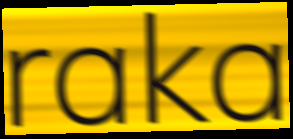
raka